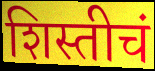
शिस्तीचं